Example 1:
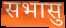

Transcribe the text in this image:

सभासु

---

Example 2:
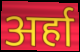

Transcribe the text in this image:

अर्हा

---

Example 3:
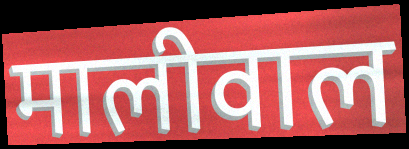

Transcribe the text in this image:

मालीवाल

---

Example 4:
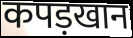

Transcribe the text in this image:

कपड़खान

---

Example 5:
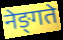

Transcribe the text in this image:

नेङ्गते